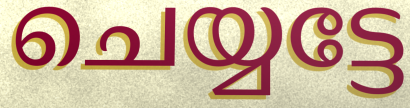
ചെയ്യട്ടേ